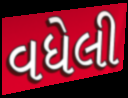
વધેલી